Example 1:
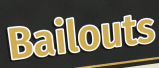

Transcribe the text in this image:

Bailouts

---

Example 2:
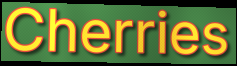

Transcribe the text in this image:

Cherries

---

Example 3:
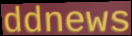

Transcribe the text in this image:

ddnews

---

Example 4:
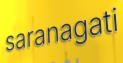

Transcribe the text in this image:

saranagati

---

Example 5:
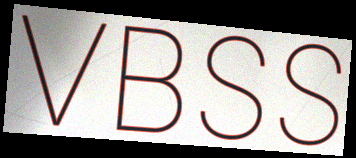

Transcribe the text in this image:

VBSS